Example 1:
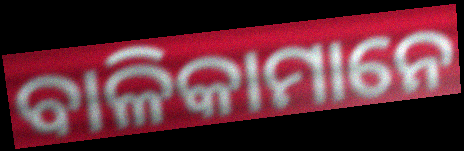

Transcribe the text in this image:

ବାଳିକାମାନେ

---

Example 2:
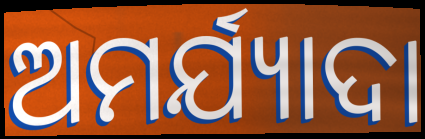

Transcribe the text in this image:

ଅମର୍ଯ୍ୟାଦା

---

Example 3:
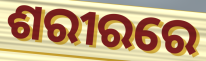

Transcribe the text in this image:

ଶରୀରରେ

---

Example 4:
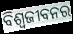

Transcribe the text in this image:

ବିଶ୍ଵଜୀବନର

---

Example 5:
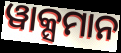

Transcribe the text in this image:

ୱାକ୍ସମାନ